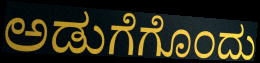
ಅಡುಗೆಗೊಂದು